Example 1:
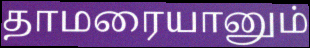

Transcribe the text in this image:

தாமரையானும்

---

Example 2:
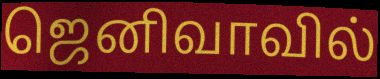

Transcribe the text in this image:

ஜெனிவாவில்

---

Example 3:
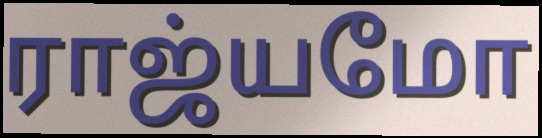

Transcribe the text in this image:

ராஜ்யமோ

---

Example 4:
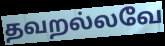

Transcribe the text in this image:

தவறல்லவே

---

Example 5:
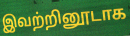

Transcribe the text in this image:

இவற்றினூடாக